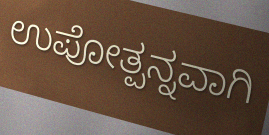
ಉಪೋತ್ಪನ್ನವಾಗಿ